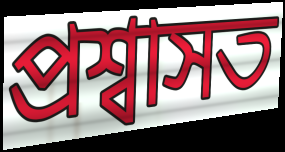
প্ৰশ্বাসত